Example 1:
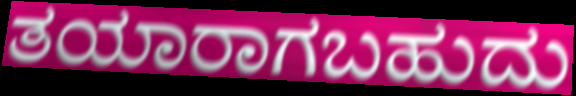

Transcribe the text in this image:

ತಯಾರಾಗಬಹುದು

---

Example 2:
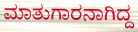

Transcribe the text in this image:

ಮಾತುಗಾರನಾಗಿದ್ದ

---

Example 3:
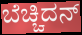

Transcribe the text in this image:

ಬೆಚ್ಚಿದನ್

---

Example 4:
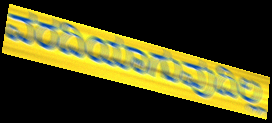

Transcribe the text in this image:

ವರದಿಯಾಗುವುದಿಲ್ಲ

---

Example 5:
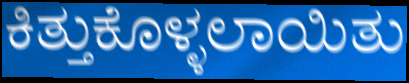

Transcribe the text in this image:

ಕಿತ್ತುಕೊಳ್ಳಲಾಯಿತು